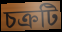
চক্রটি